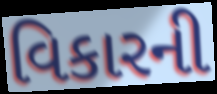
વિકારની